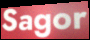
Sagor